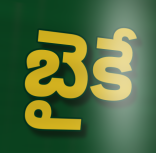
బైకే